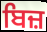
ਬਿਜ਼